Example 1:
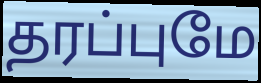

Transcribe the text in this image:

தரப்புமே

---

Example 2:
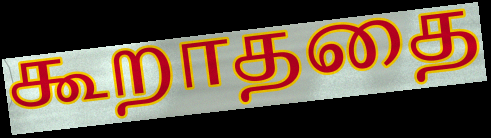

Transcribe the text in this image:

கூறாததை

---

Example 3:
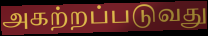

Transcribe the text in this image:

அகற்றப்படுவது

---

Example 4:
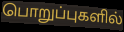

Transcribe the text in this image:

பொறுப்புகளில்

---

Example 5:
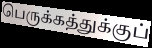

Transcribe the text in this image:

பெருக்கத்துக்குப்